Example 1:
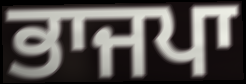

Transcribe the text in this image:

ਭਾਜਪਾ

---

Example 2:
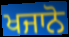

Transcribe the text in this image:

ਖਜਾਨੋ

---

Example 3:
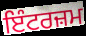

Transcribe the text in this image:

ਇੰਟਰਜ਼ਮ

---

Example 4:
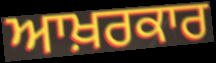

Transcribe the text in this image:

ਆਖ਼ਰਕਾਰ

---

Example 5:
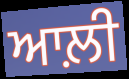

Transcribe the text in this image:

ਆਲ਼ੀ